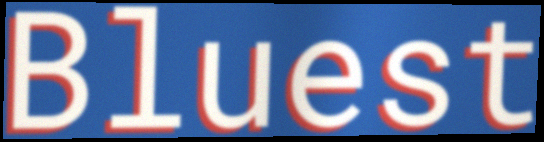
Bluest